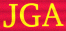
JGA